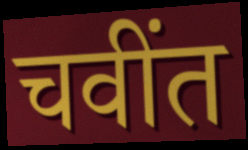
चवींत